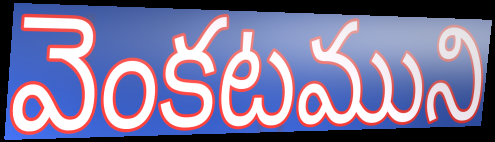
వెంకటముని